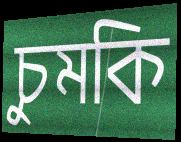
চুমকি